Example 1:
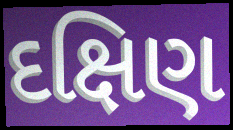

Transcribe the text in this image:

દક્ષિણ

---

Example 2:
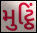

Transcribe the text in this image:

મુટ્ઠિં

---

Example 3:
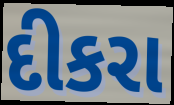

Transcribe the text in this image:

દીકરા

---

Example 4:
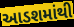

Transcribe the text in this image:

આડશમાંથી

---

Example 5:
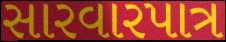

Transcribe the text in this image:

સારવારપાત્ર